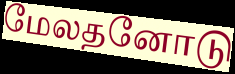
மேலதனோடு